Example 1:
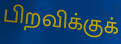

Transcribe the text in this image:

பிறவிக்குக்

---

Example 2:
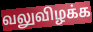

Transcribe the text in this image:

வலுவிழக்க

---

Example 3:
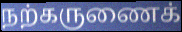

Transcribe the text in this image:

நற்கருணைக்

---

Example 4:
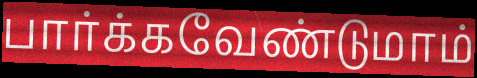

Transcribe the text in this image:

பார்க்கவேண்டுமாம்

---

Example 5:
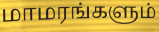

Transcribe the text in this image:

மாமரங்களும்